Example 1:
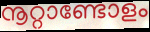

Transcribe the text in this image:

നൂറ്റാണ്ടോളം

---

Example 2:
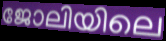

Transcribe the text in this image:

ജോലിയിലെ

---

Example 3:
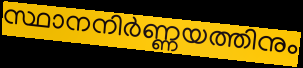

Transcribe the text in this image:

സ്ഥാനനിർണ്ണയത്തിനും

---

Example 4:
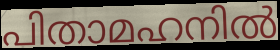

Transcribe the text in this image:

പിതാമഹനിൽ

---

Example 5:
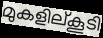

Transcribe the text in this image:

മുകളില്കൂടി